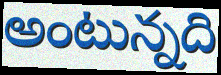
అంటున్నది